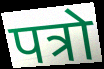
पत्रो